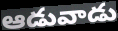
ఆడువాడు